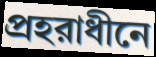
প্রহরাধীনে